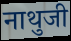
नाथुजी